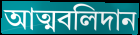
আত্মবলিদান